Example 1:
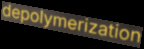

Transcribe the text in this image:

depolymerization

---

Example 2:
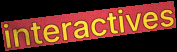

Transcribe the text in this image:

interactives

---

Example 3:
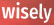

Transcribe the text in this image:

wisely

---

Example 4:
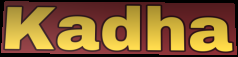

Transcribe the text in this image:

Kadha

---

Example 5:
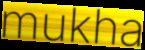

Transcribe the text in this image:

mukha